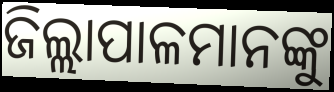
ଜିଲ୍ଲାପାଳମାନଙ୍କୁ